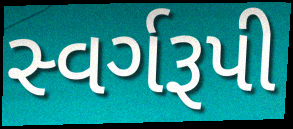
સ્વર્ગરૂપી